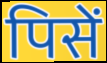
पिसें